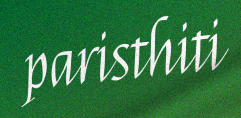
paristhiti